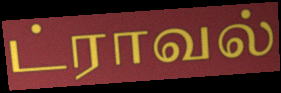
ட்ராவல்